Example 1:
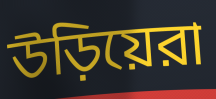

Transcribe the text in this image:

উড়িয়েরা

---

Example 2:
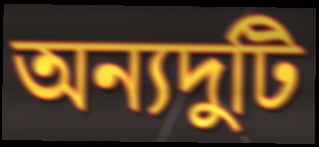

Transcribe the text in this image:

অন্যদুটি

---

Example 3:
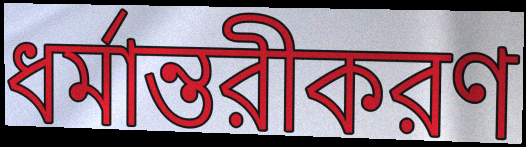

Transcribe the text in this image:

ধর্মান্তরীকরণ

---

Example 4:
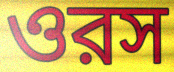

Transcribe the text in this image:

ওরস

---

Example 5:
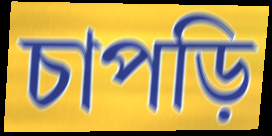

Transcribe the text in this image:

চাপড়ি